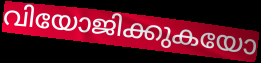
വിയോജിക്കുകയോ